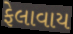
ફેલાવાય